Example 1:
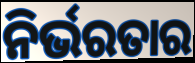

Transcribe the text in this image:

ନିର୍ଭରତାର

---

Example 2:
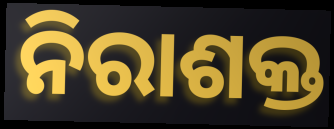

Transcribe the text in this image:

ନିରାଶକ୍ତ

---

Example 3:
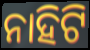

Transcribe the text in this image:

ନାହିଟି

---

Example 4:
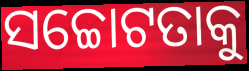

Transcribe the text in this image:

ସଚ୍ଚୋଟତାକୁ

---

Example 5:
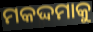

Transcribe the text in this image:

ମକଦ୍ଦମାକୁ